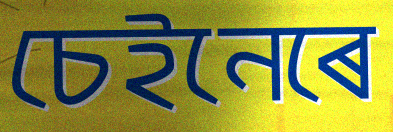
চেইনেৰে